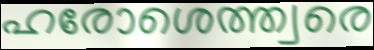
ഹരോശെത്ത്വരെ